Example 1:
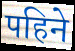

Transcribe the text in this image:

पहिने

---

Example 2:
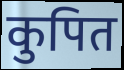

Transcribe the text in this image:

कुपित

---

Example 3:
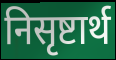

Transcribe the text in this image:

निसृष्टार्थ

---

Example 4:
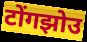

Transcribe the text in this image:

टोंगझोउ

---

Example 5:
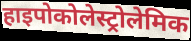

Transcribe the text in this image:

हाइपोकोलेस्ट्रोलेमिक